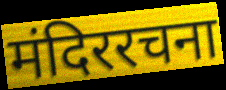
मंदिररचना